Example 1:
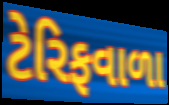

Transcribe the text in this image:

ટેરિફવાળા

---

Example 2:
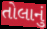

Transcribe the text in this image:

તોલાનું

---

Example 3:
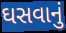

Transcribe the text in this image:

ઘસવાનું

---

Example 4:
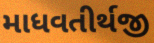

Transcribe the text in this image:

માધવતીર્થજી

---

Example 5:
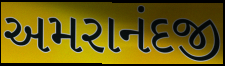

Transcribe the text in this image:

અમરાનંદજી